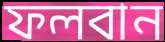
ফলবান